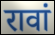
रावां